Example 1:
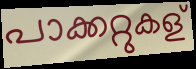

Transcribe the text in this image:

പാക്കറ്റുകള്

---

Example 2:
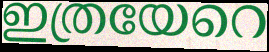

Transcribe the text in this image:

ഇത്രയേറെ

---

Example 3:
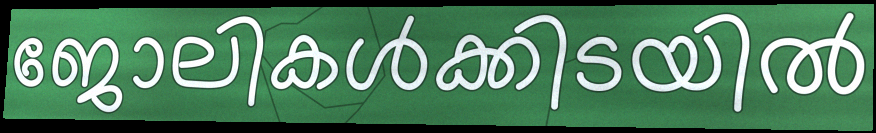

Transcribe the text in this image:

ജോലികൾക്കിടയിൽ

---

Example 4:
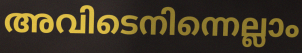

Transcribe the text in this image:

അവിടെനിന്നെല്ലാം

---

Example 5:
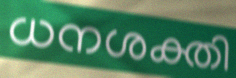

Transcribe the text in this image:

ധനശക്തി